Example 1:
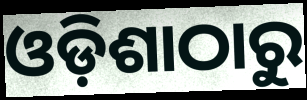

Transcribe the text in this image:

ଓଡ଼ିଶାଠାରୁ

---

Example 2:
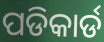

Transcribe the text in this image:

ପଡିକାର୍ଡ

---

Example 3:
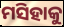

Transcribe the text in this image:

ମସିହାକୁ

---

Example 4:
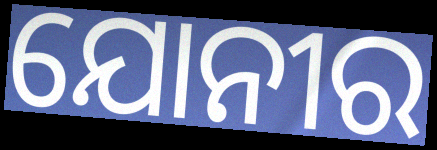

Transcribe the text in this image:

ଯୋନୀର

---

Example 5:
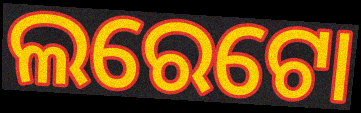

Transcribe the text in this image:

ଲରେଟୋ